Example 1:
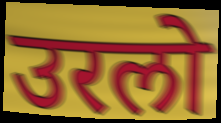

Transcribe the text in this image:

उरलो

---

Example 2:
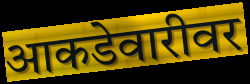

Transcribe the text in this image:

आकडेवारीवर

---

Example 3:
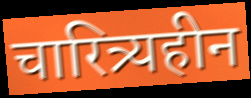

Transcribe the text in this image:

चारित्र्यहीन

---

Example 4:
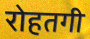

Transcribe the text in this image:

रोहतगी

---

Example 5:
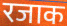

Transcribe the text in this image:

रजाक